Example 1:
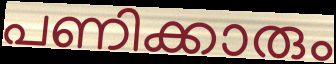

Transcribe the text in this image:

പണിക്കാരും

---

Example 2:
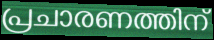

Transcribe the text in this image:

പ്രചാരണത്തിന്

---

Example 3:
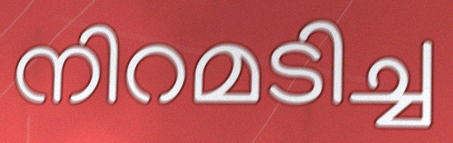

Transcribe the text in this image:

നിറമടിച്ച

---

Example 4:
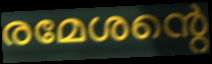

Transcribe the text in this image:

രമേശന്റെ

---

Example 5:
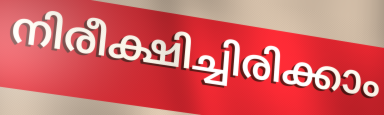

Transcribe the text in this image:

നിരീക്ഷിച്ചിരിക്കാം